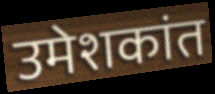
उमेशकांत